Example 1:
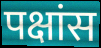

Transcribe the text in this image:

पक्षांस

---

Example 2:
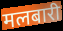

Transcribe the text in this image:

मलबारी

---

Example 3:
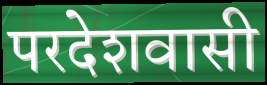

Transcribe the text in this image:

परदेशवासी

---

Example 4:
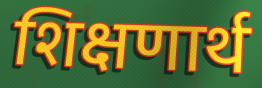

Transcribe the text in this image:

शिक्षणार्थ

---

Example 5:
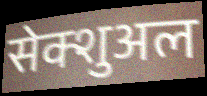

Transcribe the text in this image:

सेक्शुअल